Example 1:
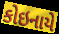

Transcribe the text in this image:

કોઇનાયે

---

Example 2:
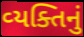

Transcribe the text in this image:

વ્‍યક્તિનું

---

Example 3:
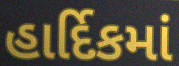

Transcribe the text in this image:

હાર્દિકમાં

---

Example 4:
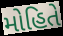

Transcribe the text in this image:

મોહિતે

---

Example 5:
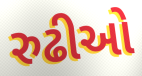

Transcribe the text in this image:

રુઢીઓ